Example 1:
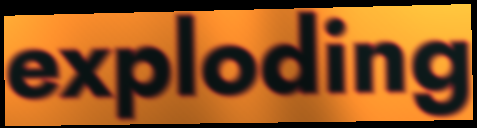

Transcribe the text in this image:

exploding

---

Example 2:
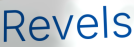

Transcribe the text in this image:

Revels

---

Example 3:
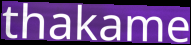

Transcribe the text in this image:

thakame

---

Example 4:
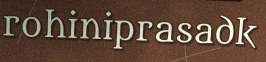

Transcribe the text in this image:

rohiniprasadk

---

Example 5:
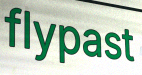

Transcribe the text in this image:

flypast